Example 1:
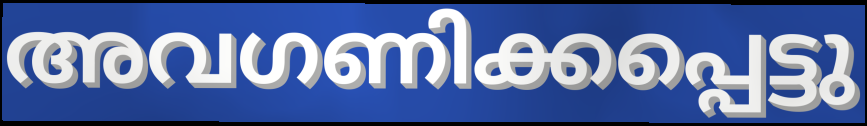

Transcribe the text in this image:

അവഗണിക്കപ്പെട്ടു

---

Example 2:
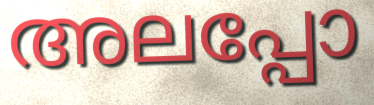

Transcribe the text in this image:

അലപ്പോ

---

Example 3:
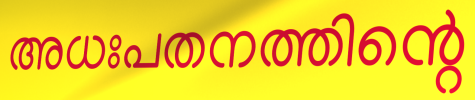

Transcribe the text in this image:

അധഃപതനത്തിന്റെ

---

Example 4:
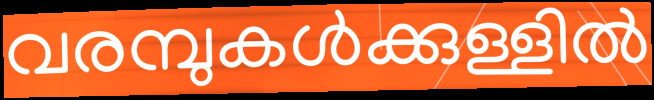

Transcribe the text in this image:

വരമ്പുകൾക്കുള്ളിൽ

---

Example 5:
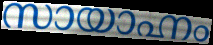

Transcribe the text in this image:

സായാഹ്നം